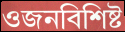
ওজনবিশিষ্ট